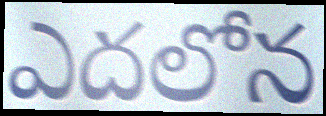
ఎదలోన